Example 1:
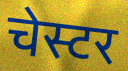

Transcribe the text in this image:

चेस्टर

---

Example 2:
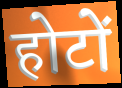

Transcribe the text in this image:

होटों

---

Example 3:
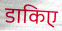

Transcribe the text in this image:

डाकिए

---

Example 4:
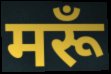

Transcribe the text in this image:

मरूँ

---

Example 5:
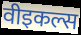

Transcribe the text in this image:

वीइकल्‍स